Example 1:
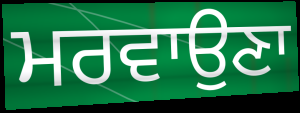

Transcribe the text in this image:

ਮਰਵਾਉਣਾ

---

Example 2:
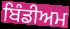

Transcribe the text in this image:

ਬਿੰਡੀਅਮ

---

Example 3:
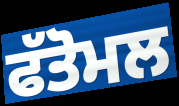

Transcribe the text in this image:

ਫੱਤੋਮਲ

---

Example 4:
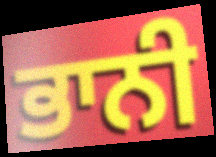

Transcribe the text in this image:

ਭਾਨੀ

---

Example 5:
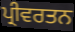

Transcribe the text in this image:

ਪ੍ਰੀਵਰਤਨ